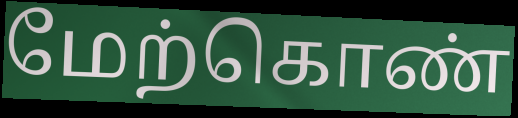
மேற்கொண்